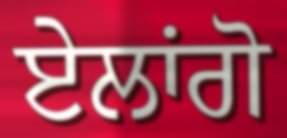
ਏਲਾਂਗੋ